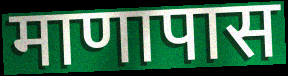
माणापास